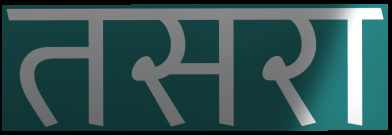
तसरा